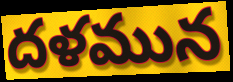
దళమున